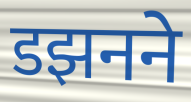
डझनने